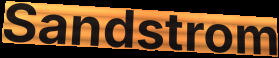
Sandstrom